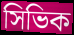
সিভিক